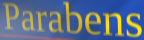
Parabens